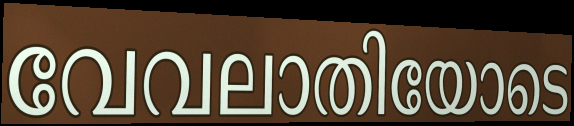
വേവലാതിയോടെ